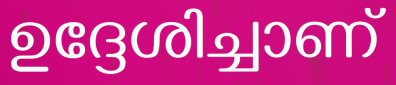
ഉദ്ദേശിച്ചാണ്